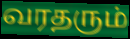
வரதரும்